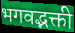
भगवद्भक्ती